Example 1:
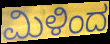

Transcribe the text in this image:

ಮಿಳಿಂದ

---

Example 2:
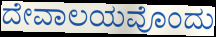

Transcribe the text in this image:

ದೇವಾಲಯವೊಂದು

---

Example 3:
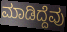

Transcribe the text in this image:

ಮಾಡಿದ್ದೆವು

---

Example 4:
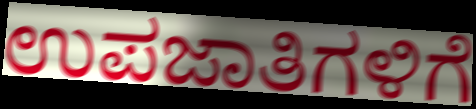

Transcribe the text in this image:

ಉಪಜಾತಿಗಳಿಗೆ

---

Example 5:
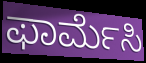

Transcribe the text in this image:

ಫಾರ್ಮೆಸಿ